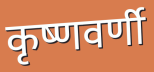
कृष्णवर्णी